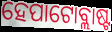
ହେପାଟୋବ୍ଲାଷ୍ଟ